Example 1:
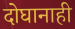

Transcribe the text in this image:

दोघानाही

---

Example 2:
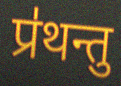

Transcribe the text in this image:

प्र॑थन्तु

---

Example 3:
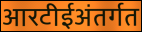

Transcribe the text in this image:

आरटीईअंतर्गत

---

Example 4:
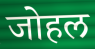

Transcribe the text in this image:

जोहल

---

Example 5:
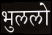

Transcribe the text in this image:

भुललो